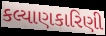
કલ્યાણકારિણી